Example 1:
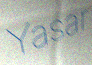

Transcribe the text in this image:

Yasar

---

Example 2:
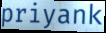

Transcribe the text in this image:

priyank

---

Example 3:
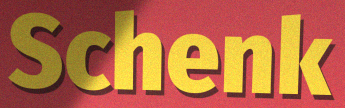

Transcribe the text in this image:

Schenk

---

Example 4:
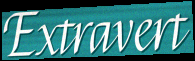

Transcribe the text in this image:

Extravert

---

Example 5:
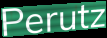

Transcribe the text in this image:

Perutz